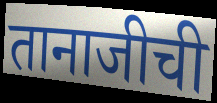
तानाजीची